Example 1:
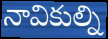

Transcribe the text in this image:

నావికుల్ని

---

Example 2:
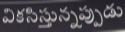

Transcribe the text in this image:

వికసిస్తున్నప్పుడు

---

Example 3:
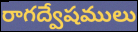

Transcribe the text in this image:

రాగద్వేషములు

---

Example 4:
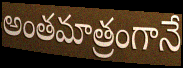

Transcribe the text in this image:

అంతమాత్రంగానే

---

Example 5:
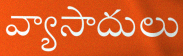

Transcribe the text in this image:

వ్యాసాదులు